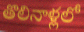
తొలినాళ్లలో